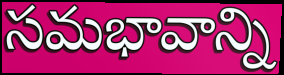
సమభావాన్ని